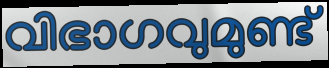
വിഭാഗവുമുണ്ട്